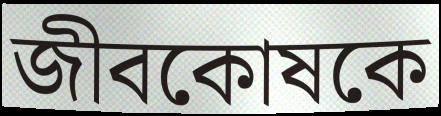
জীবকোষকে